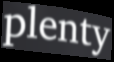
plenty